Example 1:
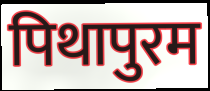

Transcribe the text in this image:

पिथापुरम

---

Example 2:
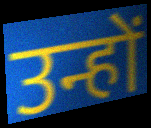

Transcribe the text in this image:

उन्हों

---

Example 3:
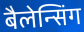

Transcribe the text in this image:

बैलेन्सिंग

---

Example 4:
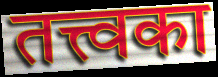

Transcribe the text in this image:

तत्त्वका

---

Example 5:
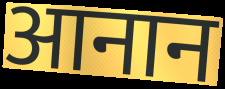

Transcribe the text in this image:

आनान